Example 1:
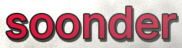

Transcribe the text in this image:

soonder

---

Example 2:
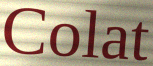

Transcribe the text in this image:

Colat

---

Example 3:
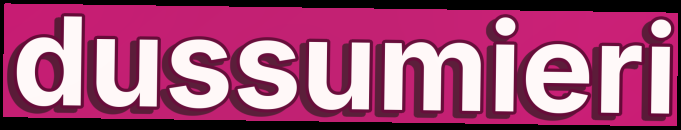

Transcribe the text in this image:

dussumieri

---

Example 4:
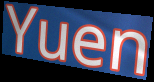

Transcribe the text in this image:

Yuen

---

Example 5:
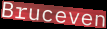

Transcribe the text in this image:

Bruceven